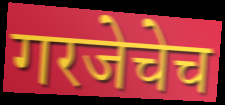
गरजेचेच